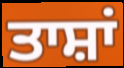
ਤਾਸ਼ਾਂ